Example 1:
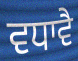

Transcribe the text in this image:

ਵਧਾਵੈ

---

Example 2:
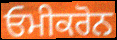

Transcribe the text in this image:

ਓਮੀਕਰੋਨ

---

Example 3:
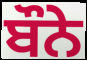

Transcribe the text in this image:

ਬੌਨੇ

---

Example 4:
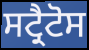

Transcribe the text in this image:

ਸਟ੍ਰੈਟੋਸ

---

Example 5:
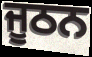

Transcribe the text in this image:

ਜੂਠਨ